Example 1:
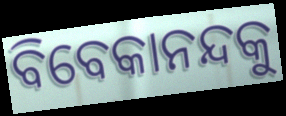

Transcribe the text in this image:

ବିବେକାନନ୍ଦକୁ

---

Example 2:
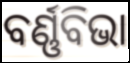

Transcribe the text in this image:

ବର୍ଣ୍ଣବିଭା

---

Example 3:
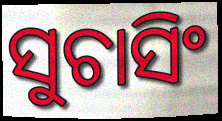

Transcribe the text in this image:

ସୁଚାସିଂ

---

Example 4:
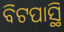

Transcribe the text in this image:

ବିଟପାସ୍ଥି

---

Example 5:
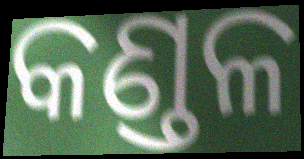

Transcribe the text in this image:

କଣ୍ଡଳ